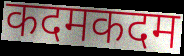
कदमकदम